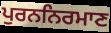
ਪੁਰਨਨਿਰਮਾਣ